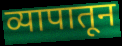
व्यापातून